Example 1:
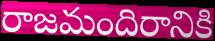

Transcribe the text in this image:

రాజమందిరానికి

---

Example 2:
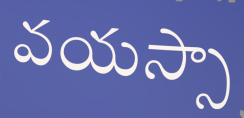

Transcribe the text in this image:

వయస్సా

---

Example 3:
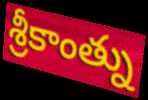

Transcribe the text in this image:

శ్రీకాంత్ను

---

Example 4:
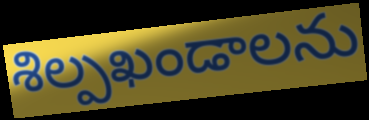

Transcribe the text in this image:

శిల్పఖండాలను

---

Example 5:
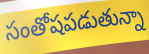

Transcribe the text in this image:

సంతోషపడుతున్నా